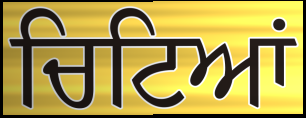
ਚਿਟਿਆਂ